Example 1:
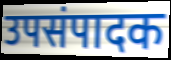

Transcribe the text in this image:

उपसंपादक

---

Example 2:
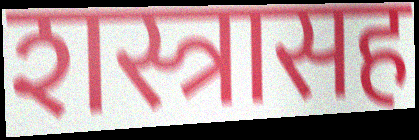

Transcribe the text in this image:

शस्त्रासह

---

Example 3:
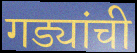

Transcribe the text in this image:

गड्यांची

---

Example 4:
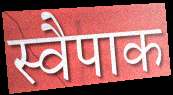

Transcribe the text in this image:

स्वैपाक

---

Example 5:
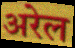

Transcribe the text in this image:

अरेल